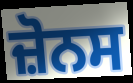
ਜ਼ੋਨਸ